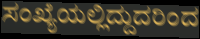
ಸಂಖ್ಯೆಯಲ್ಲಿದ್ದುದರಿಂದ